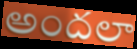
అందలా